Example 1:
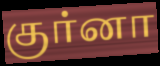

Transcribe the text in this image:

குர்னா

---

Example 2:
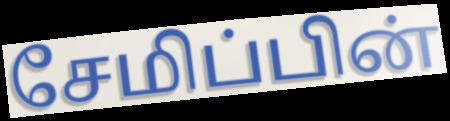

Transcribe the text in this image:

சேமிப்பின்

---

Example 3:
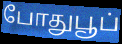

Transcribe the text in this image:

போதுபூப்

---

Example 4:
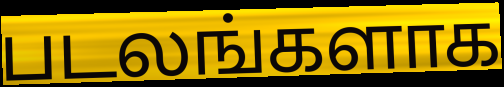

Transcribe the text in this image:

படலங்களாக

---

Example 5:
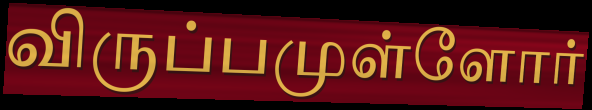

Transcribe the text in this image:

விருப்பமுள்ளோர்